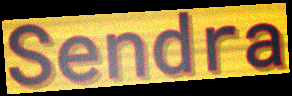
Sendra